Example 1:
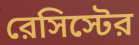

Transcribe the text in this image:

রেসিস্টের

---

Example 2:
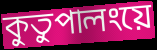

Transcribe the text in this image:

কুতুপালংয়ে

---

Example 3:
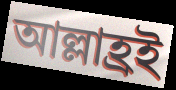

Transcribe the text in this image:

আল্লাহ্রই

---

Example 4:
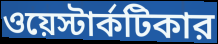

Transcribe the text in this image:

ওয়েস্টার্কটিকার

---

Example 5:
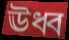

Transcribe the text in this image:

ঊধ্ব